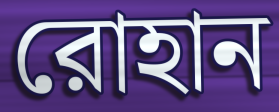
রোহান